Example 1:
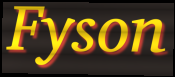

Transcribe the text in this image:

Fyson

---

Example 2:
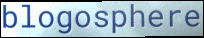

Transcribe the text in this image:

blogosphere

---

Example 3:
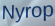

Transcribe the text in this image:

Nyrop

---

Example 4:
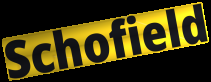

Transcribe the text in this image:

Schofield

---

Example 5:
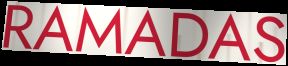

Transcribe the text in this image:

RAMADAS